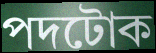
পদটোক